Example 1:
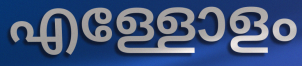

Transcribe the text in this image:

എള്ളോളം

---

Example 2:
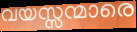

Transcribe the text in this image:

വയസ്സന്മാരെ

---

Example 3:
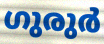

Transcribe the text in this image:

ഗുരുർ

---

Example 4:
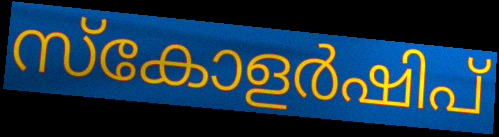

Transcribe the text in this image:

സ്കോളർഷിപ്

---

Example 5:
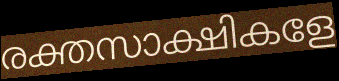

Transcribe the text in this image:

രക്തസാക്ഷികളേ